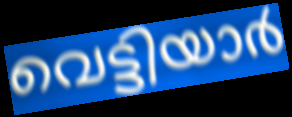
വെട്ടിയാർ